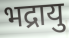
भद्रायु